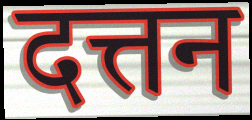
दत्तन